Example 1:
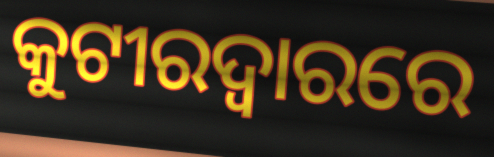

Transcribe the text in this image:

କୁଟୀରଦ୍ୱାରରେ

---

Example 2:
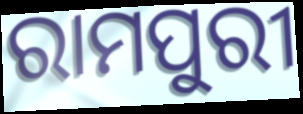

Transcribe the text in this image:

ରାମପୁରୀ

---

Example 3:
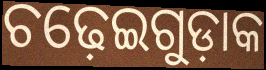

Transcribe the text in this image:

ଚଢ଼େଇଗୁଡ଼ାକ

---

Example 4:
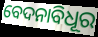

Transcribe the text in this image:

ବେଦନାବିଧୂର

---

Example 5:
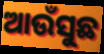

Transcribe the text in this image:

ଆଉଁସୁଛ